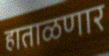
हाताळणार